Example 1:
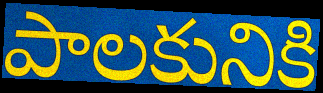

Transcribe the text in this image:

పాలకునికి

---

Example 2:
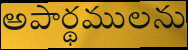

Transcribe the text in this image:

అపార్థములను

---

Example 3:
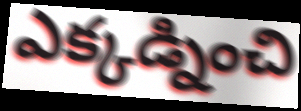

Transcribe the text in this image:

ఎక్కడ్నించి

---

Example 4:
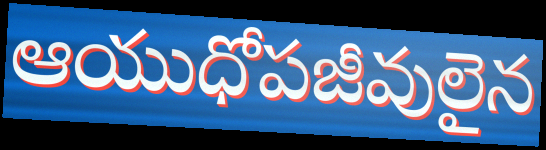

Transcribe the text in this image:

ఆయుధోపజీవులైన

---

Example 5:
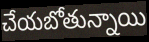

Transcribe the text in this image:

చేయబోతున్నాయి